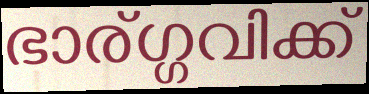
ഭാര്ഗ്ഗവിക്ക്